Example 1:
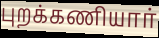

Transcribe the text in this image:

புறக்கணியார்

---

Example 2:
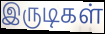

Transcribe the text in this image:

இருடிகள்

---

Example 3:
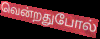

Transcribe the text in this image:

வென்றதுபோல்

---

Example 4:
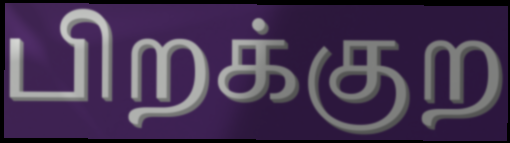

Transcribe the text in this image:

பிறக்குற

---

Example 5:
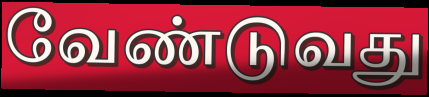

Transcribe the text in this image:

வேண்டுவது